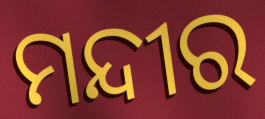
ମନ୍ଦୀର